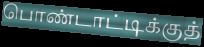
பொண்டாட்டிக்குத்